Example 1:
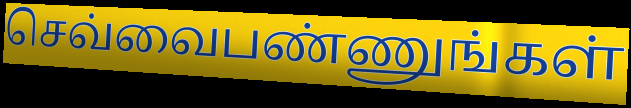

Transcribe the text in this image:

செவ்வைபண்ணுங்கள்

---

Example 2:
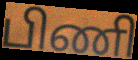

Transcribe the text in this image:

பிணி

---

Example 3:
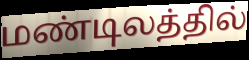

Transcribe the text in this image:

மண்டிலத்தில்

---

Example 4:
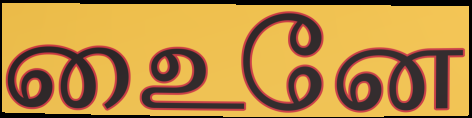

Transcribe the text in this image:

உைனே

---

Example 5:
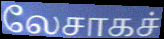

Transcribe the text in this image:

லேசாகச்